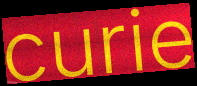
curie